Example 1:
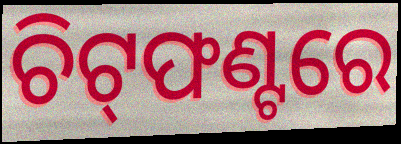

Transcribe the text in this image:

ଚିଟ୍‌ଫଣ୍ଟରେ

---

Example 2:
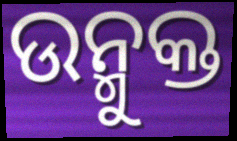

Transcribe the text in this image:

ଉନ୍ମୁକ୍ତ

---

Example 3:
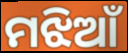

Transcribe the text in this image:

ମଝିଆଁ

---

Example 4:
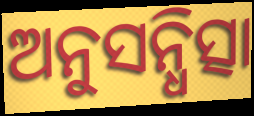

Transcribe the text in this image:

ଅନୁସନ୍ଧିତ୍ସା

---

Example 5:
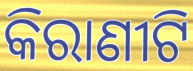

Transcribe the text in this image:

କିରାଣୀଟି